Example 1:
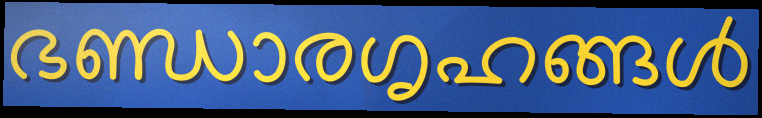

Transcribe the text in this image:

ഭണ്ഡാരഗൃഹങ്ങൾ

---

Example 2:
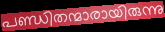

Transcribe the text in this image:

പണ്ഡിതന്മാരായിരുന്നു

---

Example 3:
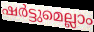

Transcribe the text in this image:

ഷർട്ടുമെല്ലാം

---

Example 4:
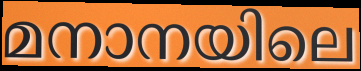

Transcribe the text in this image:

മനാനയിലെ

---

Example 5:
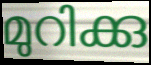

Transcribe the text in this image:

മുറിക്കു